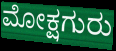
ಮೋಕ್ಷಗುರು